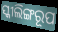
ସ୍କୀଲିଙ୍ଗରୂପ